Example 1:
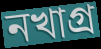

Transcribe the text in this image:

নখাগ্র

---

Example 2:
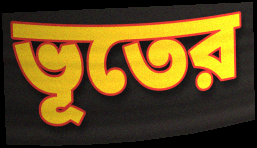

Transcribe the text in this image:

ভূতের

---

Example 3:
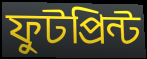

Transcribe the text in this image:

ফুটপ্রিন্ট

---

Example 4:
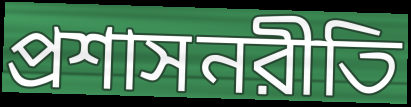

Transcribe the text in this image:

প্রশাসনরীতি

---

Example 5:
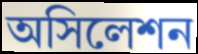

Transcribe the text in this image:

অসিলেশন